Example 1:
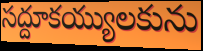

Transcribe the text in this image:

సద్దూకయ్యులకును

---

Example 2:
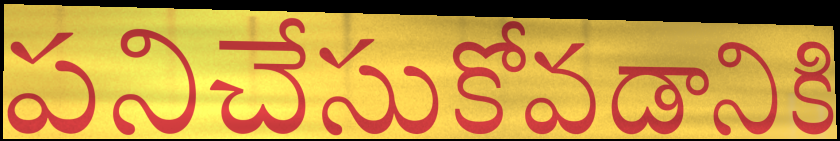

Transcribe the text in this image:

పనిచేసుకోవడానికి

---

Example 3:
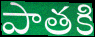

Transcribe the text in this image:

పాతకి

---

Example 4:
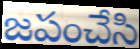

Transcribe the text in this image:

జపంచేసి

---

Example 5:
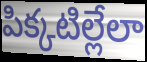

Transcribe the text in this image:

పిక్కటిల్లేలా